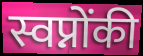
स्वप्नोंकी